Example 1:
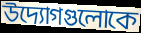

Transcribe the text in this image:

উদ্যোগগুলোকে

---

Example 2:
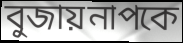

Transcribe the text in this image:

বুজায়নাপকে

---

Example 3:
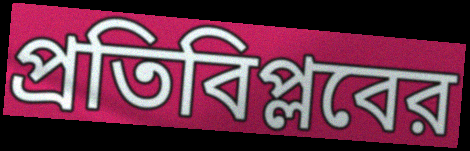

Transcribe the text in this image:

প্রতিবিপ্লবের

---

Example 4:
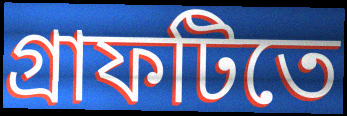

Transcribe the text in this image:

গ্রাফটিতে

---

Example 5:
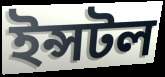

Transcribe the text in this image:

ইন্সটল